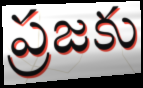
ప్రజకు